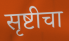
सृष्टीचा